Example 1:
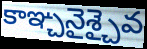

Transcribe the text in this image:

కాఞ్చనైశ్చైవ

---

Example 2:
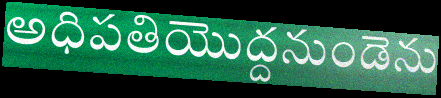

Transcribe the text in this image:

అధిపతియొద్దనుండెను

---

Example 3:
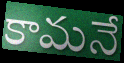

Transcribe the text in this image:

కామనే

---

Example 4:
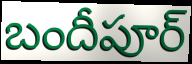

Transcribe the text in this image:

బందీపూర్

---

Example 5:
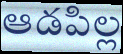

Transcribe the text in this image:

ఆడపిల్ల